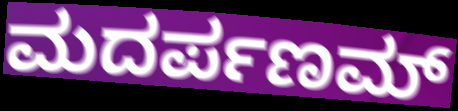
ಮದರ್ಪಣಮ್